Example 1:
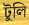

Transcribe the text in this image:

টুলি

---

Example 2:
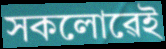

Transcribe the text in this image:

সকলোৱেই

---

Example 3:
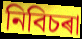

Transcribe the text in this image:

নিবিচৰা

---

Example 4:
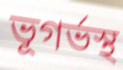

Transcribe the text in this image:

ভূগৰ্ভস্থ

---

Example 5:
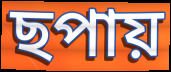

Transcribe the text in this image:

ছপায়